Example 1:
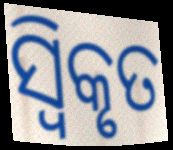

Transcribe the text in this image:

ସ୍ଵିକୃତ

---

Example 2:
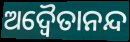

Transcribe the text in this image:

ଅଦ୍ଵୈତାନନ୍ଦ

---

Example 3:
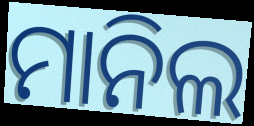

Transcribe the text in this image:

ମାନିଲ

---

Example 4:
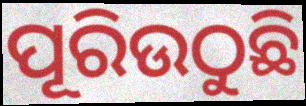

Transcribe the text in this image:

ପୂରିଉଠୁଛି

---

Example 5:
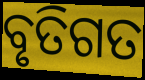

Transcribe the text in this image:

ବୃତିଗତ